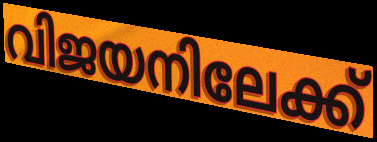
വിജയനിലേക്ക്